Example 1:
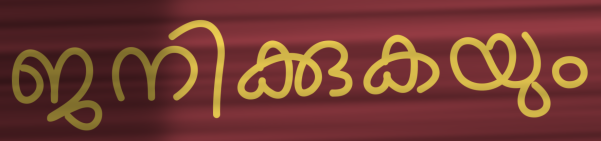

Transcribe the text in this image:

ജനിക്കുകയും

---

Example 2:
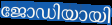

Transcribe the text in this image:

ജോഡിയായി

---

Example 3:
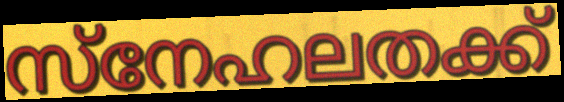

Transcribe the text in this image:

സ്നേഹലതക്ക്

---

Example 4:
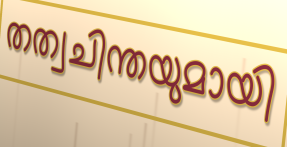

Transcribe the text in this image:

തത്വചിന്തയുമായി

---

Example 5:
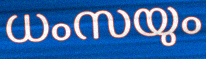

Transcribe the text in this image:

ധംസയും